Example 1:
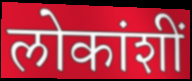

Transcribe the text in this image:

लोकांशीं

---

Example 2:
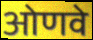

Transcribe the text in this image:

ओणवे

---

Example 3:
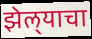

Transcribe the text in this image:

झेल्याचा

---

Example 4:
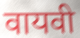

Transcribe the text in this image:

वायवी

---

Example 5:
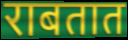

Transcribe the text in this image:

राबतात